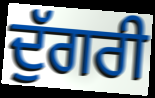
ਦੁੱਗਰੀ